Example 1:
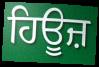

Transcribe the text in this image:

ਹਿਊਜ਼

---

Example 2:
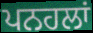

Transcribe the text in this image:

ਪਨਹਲਾਂ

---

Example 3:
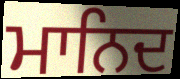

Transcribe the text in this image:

ਮਾਨਿਦ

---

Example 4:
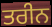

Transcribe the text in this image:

ਤਰੀਨ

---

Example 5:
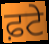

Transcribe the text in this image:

ਫ਼ਟੇ